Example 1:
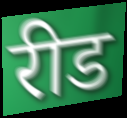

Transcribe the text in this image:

रीड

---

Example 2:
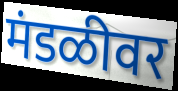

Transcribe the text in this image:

मंडळीवर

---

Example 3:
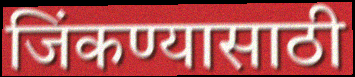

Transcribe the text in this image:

जिंकण्यासाठी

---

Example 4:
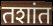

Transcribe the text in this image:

तशांत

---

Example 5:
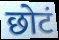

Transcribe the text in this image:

छोटं